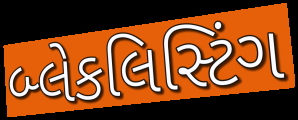
બ્લેકલિસ્ટિંગ